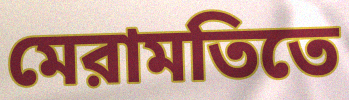
মেরামতিতে